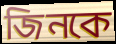
জিনকে